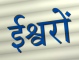
ईश्वरों